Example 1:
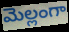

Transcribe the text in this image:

మెల్లంగా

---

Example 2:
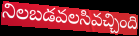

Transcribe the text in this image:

నిలబడవలసివచ్చింది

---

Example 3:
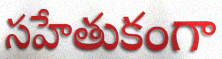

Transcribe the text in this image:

సహేతుకంగా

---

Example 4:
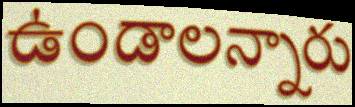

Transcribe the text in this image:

ఉండాలన్నారు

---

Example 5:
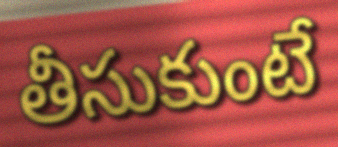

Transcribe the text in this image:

తీసుకుంటే